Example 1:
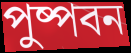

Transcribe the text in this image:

পুষ্পবন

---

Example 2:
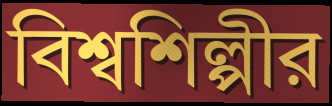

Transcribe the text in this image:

বিশ্বশিল্পীর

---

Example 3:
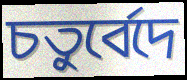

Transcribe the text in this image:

চতুর্বেদে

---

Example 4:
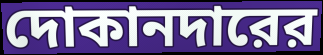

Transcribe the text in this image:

দোকানদারের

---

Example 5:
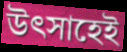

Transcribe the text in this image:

উৎসাহেই